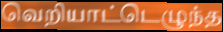
வெறியாட்டெழுந்த